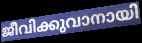
ജീവിക്കുവാനായി